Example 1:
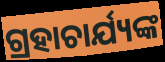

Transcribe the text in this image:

ଗ୍ରହାଚାର୍ଯ୍ୟଙ୍କ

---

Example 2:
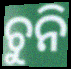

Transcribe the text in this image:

ଚୁନି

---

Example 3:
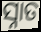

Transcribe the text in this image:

ସ୍ନାତ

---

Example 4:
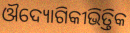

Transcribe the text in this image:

ଔଦ୍ୟୋଗିକୀଭିତ୍ତିକ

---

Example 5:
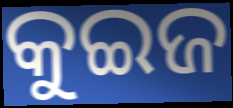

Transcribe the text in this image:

କୁଇଜ